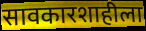
सावकारशाहीला